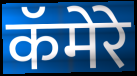
कॅमेरे